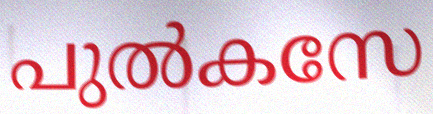
പുൽകസേ